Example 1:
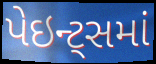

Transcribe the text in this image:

પેઇન્ટ્સમાં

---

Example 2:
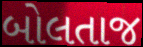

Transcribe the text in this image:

બોલતાજ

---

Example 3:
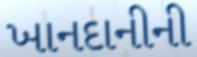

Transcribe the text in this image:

ખાનદાનીની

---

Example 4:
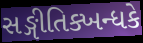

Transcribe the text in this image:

સઙ્ગીતિક્ખન્ધકે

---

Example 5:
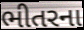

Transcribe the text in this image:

ભીતરના